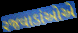
રજવાડાંઓએ